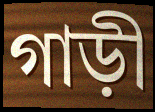
গাড়ী